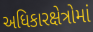
અધિકારક્ષેત્રોમાં